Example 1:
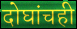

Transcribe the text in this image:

दोघांचही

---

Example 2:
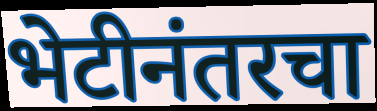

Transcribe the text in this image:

भेटीनंतरचा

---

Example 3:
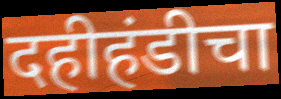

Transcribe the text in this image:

दहीहंडीचा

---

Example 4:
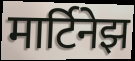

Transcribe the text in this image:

मार्टिनेझ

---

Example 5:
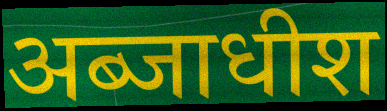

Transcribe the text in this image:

अब्जाधीश